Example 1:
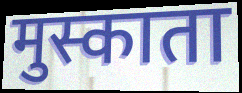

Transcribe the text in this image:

मुस्काता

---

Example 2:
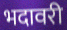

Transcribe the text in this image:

भदावरी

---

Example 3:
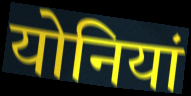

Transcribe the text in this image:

योनियां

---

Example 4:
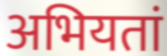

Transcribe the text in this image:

अभियतां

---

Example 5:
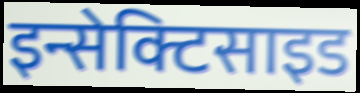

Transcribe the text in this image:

इन्सेक्टिसाइड